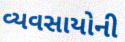
વ્યવસાયોની